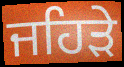
ਜਹਿੜੇ